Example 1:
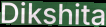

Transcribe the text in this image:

Dikshita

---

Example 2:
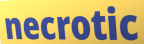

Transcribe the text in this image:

necrotic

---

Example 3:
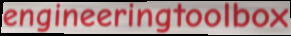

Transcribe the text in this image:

engineeringtoolbox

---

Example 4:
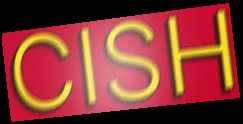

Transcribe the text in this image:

CISH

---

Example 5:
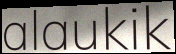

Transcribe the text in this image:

alaukik